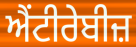
ਐਂਟੀਰੇਬੀਜ਼